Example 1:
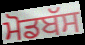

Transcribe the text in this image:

ਮੋਡਬੱਸ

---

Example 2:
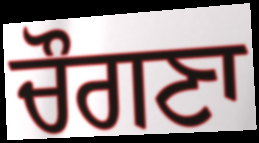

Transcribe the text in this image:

ਚੌਗਣਾ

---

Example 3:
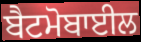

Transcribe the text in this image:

ਬੈਟਮੋਬਾਈਲ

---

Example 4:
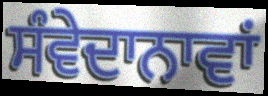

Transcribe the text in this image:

ਸੰਵੇਦਾਨਾਵਾਂ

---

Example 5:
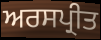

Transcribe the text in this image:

ਅਰਸਪ੍ਰੀਤ